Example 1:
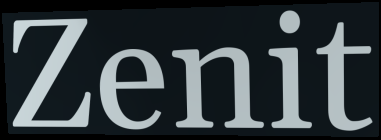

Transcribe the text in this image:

Zenit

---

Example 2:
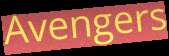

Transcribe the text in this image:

Avengers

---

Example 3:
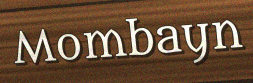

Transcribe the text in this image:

Mombayn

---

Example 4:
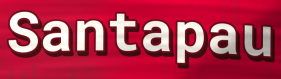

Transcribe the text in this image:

Santapau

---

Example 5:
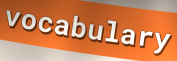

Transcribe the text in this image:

vocabulary